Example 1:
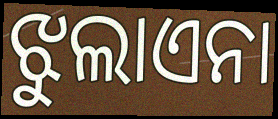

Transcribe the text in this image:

ଝୁଲାଏନା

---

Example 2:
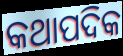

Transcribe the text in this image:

କଥାପଦିକ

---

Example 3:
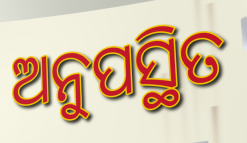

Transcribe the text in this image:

ଅନୁପସ୍ଥିତ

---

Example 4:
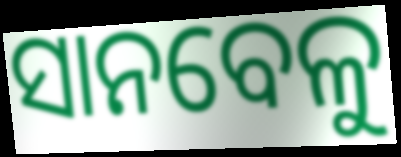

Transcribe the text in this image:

ସାନବେଳୁ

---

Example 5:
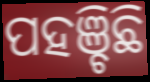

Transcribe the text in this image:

ପହଞ୍ଚିଛି